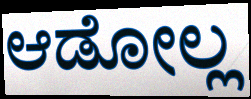
ಆಡೋಲ್ಲ